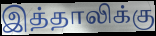
இத்தாலிக்கு